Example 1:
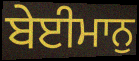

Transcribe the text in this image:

ਬੇਈਮਾਨੁ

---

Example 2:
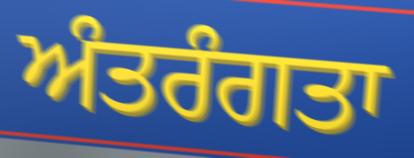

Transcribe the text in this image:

ਅੰਤਰੰਗਤਾ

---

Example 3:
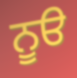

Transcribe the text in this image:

ਨੂੳ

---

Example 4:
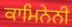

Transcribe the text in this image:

ਕਾਮਿਨੇਨੀ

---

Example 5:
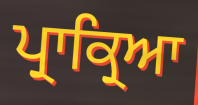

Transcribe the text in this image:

ਪ੍ਰਾਕ੍ਰਿਆ